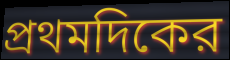
প্রথমদিকের